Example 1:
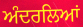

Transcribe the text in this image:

ਅੰਦਰਲਿਆਂ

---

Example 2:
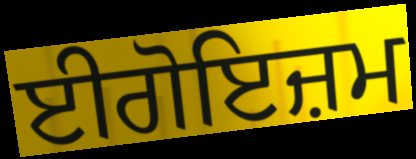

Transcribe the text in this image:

ਈਗੋਇਜ਼ਮ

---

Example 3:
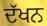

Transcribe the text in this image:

ਦੱਖਨ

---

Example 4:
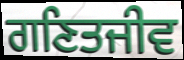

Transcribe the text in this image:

ਗਣਿਤਜੀਵ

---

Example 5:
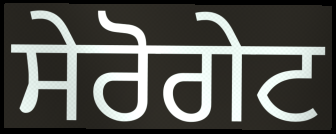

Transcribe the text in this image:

ਸੇਰੋਗੇਟ